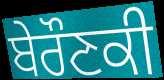
ਬੇਰੌਣਕੀ